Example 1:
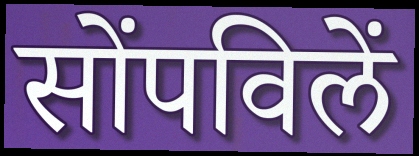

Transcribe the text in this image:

सोंपविलें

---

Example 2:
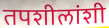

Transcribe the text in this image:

तपशीलांशी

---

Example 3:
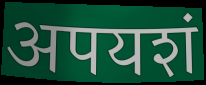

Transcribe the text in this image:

अपयशं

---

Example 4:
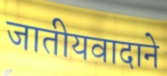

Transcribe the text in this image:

जातीयवादाने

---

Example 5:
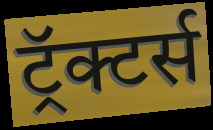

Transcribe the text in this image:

ट्रॅक्टर्स